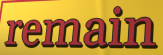
remain